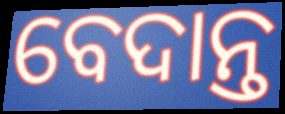
ବେଦାନ୍ତ